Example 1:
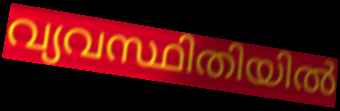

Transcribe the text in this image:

വ്യവസ്ഥിതിയിൽ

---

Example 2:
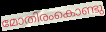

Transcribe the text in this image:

മോതിരംകൊണ്ടു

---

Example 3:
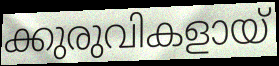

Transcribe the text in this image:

ക്കുരുവികളായ്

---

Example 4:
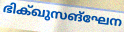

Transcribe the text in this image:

ഭിക്ഖുസങ്ഘേന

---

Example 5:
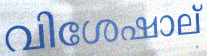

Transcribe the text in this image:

വിശേഷാല്